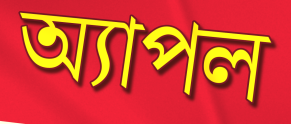
অ্যাপল